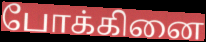
போக்கினை